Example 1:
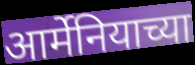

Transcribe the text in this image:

आर्मेनियाच्या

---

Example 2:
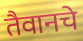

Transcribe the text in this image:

तैवानचे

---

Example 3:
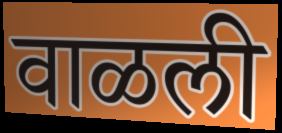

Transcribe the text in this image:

वाळली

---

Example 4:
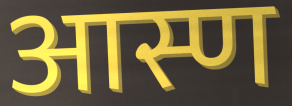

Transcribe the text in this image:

आस्ण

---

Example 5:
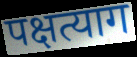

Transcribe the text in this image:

पक्षत्याग